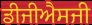
ਡੀਜੀਐਸਜੀ